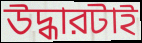
উদ্ধারটাই